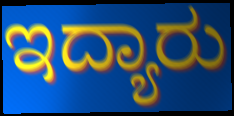
ಇದ್ಯಾರು